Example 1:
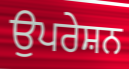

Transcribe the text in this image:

ਉਪਰੇਸ਼ਨ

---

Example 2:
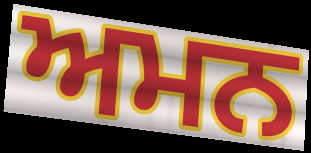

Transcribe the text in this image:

ਅਮਨ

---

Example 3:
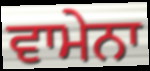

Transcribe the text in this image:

ਵਾਮੇਨਾ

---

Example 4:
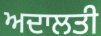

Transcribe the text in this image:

ਅਦਾਲਤੀ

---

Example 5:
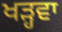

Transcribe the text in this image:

ਖੜ੍ਹਵਾ